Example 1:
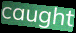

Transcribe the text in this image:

caught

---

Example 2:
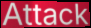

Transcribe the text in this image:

Attack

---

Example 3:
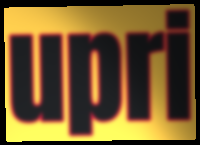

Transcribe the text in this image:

upri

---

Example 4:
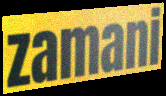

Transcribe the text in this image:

zamani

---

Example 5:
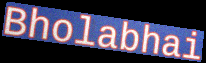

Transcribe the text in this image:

Bholabhai